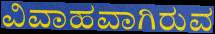
ವಿವಾಹವಾಗಿರುವ